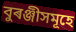
বুৰঞ্জীসমূহে